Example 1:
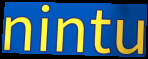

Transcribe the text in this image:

nintu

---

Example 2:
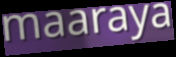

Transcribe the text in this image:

maaraya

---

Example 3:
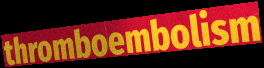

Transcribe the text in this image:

thromboembolism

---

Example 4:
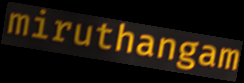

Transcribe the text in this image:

miruthangam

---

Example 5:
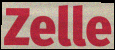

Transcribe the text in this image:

Zelle